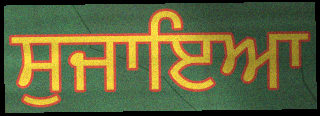
ਸੁਜਾਇਆ